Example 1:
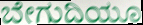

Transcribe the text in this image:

ಬೇಗುದಿಯೂ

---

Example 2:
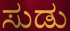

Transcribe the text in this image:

ಸುಡು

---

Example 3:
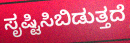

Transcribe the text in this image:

ಸೃಷ್ಟಿಸಿಬಿಡುತ್ತದೆ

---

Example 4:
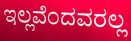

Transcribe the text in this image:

ಇಲ್ಲವೆಂದವರಲ್ಲ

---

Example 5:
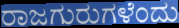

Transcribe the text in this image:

ರಾಜಗುರುಗಳೆಂದು